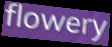
flowery